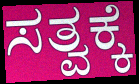
ಸತ್ವಕ್ಕೆ